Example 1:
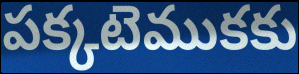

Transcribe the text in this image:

పక్కటెముకకు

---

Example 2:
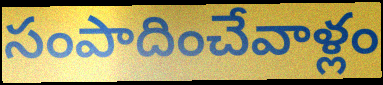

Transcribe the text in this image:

సంపాదించేవాళ్లం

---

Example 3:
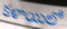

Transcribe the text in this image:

కళాయిలో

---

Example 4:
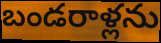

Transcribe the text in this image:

బండరాళ్లను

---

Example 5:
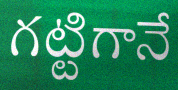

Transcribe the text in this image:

గట్టిగానే